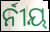
ର୍ନୀୟ